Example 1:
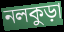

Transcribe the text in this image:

নলকুড়া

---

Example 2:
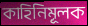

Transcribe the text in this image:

কাহিনিমূলক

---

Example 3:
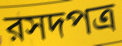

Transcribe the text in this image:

রসদপত্র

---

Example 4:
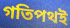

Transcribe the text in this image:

গতিপথই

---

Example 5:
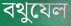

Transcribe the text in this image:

বথুযেল